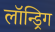
लॉन्ड्रिग